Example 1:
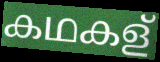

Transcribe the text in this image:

കഥകള്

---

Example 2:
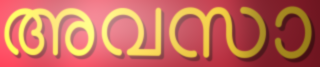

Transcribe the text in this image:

അവസാ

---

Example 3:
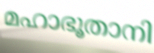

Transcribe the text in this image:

മഹാഭൂതാനി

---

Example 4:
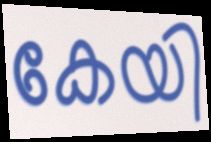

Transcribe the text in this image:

കേയി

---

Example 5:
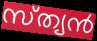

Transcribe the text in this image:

സ്‌ത്യൻ